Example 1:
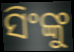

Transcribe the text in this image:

ସିଂଙ୍କୁ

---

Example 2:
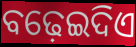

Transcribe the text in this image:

ବଢ଼େଇଦିଏ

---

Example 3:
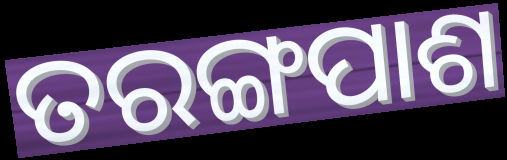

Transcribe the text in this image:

ତରଙ୍ଗପାଶ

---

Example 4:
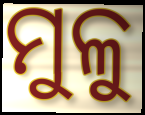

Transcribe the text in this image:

ମୁଳୁ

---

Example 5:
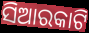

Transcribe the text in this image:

ସିଆରକାଟି